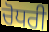
ਚੋਧਰੀ